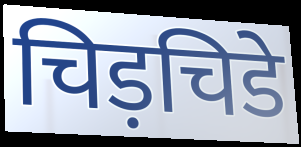
चिड़चिडे